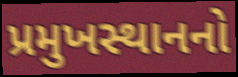
પ્રમુખસ્થાનનો